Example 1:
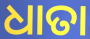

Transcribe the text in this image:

ଧାତା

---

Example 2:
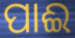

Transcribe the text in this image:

ପାଈ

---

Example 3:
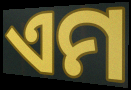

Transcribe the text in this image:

ଏମ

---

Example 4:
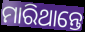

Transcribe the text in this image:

ମାରିଥାନ୍ତେ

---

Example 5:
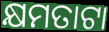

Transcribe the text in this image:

କ୍ଷମତାଟା